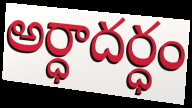
అర్ధాదర్ధం